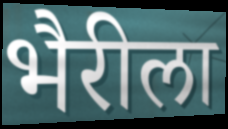
भैरीला